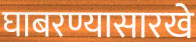
घाबरण्यासारखे